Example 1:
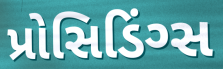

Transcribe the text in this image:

પ્રોસિડિંગ્સ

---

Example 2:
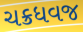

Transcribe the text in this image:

ચક્રધવજ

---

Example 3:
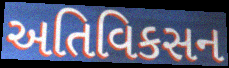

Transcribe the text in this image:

અતિવિકસન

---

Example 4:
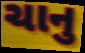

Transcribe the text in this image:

ચાનુ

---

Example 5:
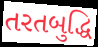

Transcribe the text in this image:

તરતબુદ્ધિ